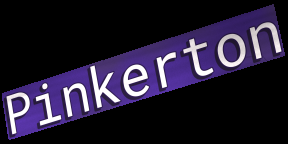
Pinkerton